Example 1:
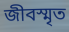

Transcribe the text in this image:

জীবস্মৃত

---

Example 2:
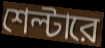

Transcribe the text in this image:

শেল্টারে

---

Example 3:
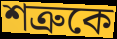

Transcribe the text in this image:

শত্রুকে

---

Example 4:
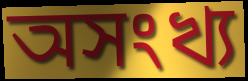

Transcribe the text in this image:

অসংখ্য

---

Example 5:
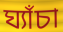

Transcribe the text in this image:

ঘ্যাঁচা